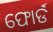
ଫୋର୍ଡ